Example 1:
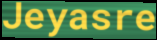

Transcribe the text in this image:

Jeyasre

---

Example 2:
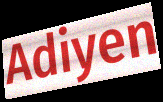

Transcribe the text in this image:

Adiyen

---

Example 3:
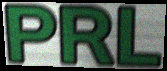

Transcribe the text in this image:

PRL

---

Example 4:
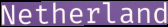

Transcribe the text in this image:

Netherland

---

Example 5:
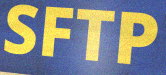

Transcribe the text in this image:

SFTP